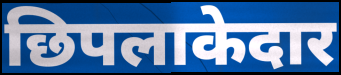
छिपलाकेदार